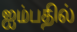
ஐம்பதில்